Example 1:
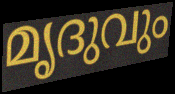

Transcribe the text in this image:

മൃദുവും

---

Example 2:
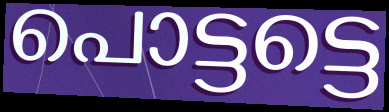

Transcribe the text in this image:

പൊട്ടട്ടെ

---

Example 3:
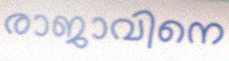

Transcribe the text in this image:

രാജാവിനെ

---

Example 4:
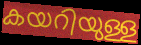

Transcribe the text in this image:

കയറിയുള്ള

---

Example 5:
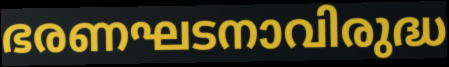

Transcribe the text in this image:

ഭരണഘടനാവിരുദ്ധ